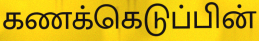
கணக்கெடுப்பின்